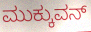
ಮುಕ್ಕುವನ್